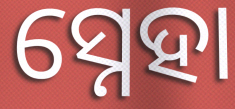
ସ୍ନେହା